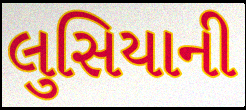
લુસિયાની